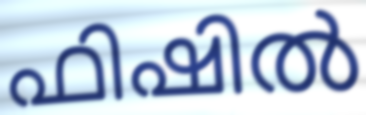
ഫിഷിൽ